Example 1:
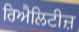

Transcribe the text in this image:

ਰਿਐਲਿਟੀਜ਼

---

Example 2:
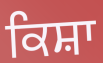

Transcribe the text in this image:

ਕਿਸ਼ਾ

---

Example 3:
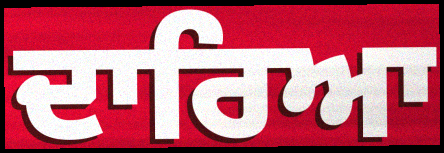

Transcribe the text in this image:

ਦਾਰਿਆ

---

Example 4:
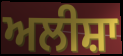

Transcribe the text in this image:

ਅਲੀਸ਼ਾ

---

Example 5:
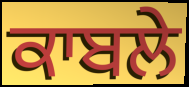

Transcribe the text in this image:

ਕਾਬਲੇ